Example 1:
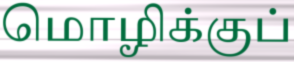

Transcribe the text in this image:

மொழிக்குப்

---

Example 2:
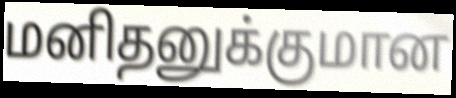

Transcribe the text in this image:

மனிதனுக்குமான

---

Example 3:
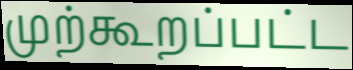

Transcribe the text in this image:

முற்கூறப்பட்ட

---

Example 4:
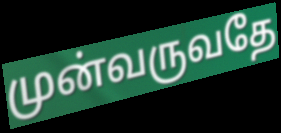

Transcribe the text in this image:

முன்வருவதே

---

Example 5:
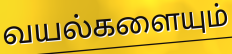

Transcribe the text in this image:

வயல்களையும்